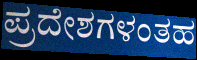
ಪ್ರದೇಶಗಳಂತಹ